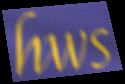
hws